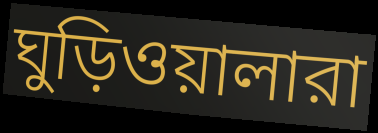
ঘুড়িওয়ালারা